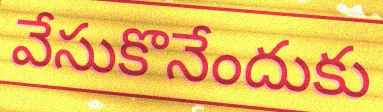
వేసుకొనేందుకు